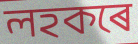
লহকৰে